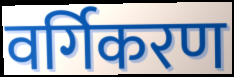
वर्गिकरण